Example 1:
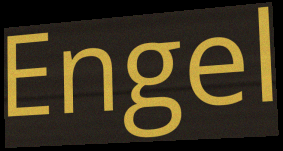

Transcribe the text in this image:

Engel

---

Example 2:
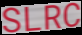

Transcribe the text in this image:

SLRC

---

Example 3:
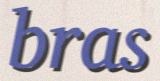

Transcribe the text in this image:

bras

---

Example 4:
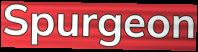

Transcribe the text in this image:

Spurgeon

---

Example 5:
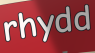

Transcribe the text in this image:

rhydd